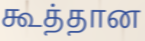
கூத்தான